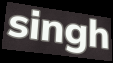
singh